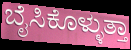
ಬೈಸಿಕೊಳ್ಳುತ್ತಾ